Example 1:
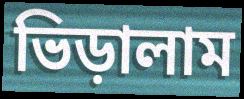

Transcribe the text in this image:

ভিড়ালাম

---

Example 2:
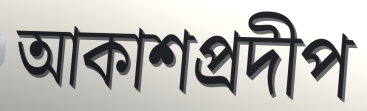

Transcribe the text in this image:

আকাশপ্রদীপ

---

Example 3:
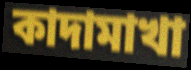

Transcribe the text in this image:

কাদামাখা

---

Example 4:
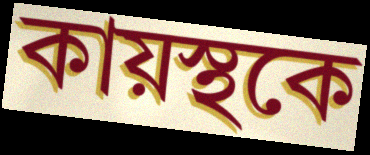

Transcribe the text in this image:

কায়স্থকে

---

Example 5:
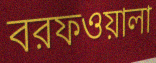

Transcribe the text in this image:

বরফওয়ালা